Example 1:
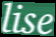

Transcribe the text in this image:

lise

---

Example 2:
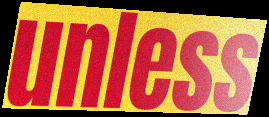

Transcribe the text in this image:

unless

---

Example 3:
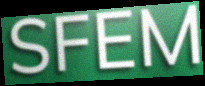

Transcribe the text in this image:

SFEM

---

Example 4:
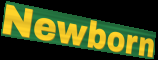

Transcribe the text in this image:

Newborn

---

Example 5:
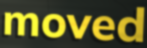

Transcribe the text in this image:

moved